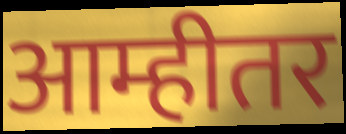
आम्हीतर